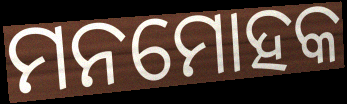
ମନମୋହକ